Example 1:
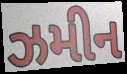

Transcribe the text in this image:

ઝમીન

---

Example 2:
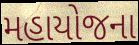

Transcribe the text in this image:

મહાયોજના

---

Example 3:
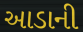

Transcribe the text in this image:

આડાની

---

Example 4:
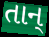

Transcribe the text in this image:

તાન્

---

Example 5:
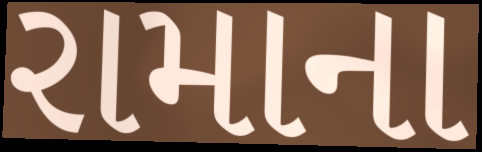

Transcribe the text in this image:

રામાના